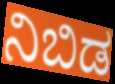
ನಿಬಿಡ